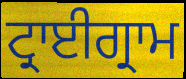
ਟ੍ਰਾਈਗ੍ਰਾਮ